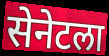
सेनेटला